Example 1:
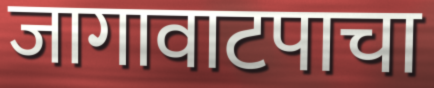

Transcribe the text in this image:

जागावाटपाचा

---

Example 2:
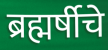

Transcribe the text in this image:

ब्रह्मर्षीचे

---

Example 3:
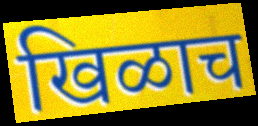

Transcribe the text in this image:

खिळाच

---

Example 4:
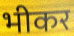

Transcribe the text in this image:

भीकर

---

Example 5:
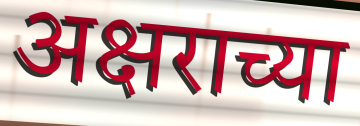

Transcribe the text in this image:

अक्षराच्या